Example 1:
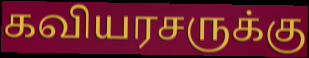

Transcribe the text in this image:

கவியரசருக்கு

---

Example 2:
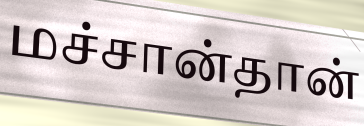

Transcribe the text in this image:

மச்சான்தான்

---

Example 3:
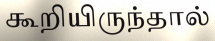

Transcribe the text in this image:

கூறியிருந்தால்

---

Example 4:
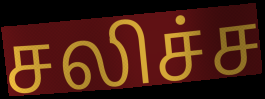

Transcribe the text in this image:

சலிச்ச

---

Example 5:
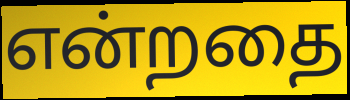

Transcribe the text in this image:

என்றதை